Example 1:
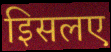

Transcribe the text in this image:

इिसलए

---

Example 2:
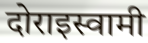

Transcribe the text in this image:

दोराइस्वामी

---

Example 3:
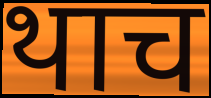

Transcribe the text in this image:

थाच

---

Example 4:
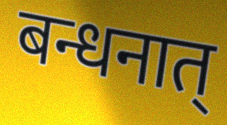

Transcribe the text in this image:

बन्धनात्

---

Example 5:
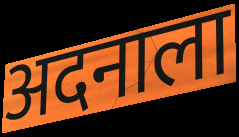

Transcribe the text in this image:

अदनाला